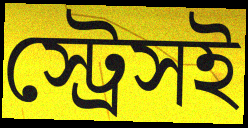
স্ট্রেসই